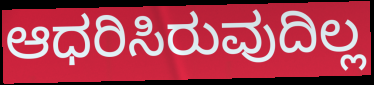
ಆಧರಿಸಿರುವುದಿಲ್ಲ